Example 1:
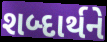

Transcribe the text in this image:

શબ્દાર્થને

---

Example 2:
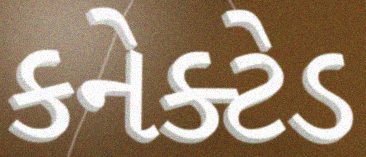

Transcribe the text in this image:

કનેક્ટેડ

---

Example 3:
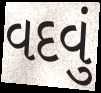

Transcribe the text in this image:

વદવું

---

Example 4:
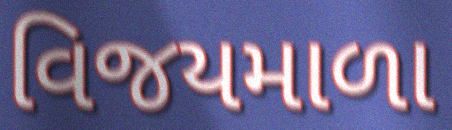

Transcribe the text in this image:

વિજયમાળા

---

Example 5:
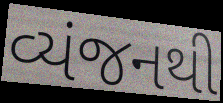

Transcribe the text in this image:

વ્યંજનથી